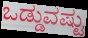
ಒಡ್ಡುವಷ್ಟು